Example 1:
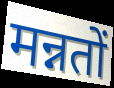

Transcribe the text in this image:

मन्नतों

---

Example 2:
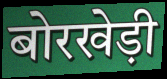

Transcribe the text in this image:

बोरखेड़ी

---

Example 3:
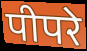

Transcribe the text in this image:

पीपरे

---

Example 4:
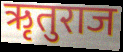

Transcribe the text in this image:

ऋृतुराज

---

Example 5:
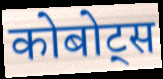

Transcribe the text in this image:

कोबोट्स